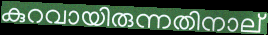
കുറവായിരുന്നതിനാല്